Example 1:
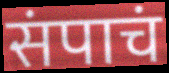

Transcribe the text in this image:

संपाचं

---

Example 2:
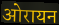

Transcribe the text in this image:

ओरायन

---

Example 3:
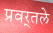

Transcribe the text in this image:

प्रवर्तले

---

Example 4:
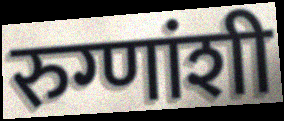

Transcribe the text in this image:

रुग्णांशी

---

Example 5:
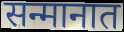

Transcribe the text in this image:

सन्मानात